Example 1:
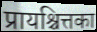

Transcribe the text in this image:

प्रायश्चित्तका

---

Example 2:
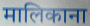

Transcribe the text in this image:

मालिकाना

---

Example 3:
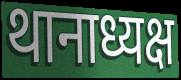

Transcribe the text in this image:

थानाध्यक्ष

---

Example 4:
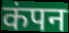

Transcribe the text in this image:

कंपन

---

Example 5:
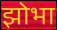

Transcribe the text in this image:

झोभा